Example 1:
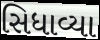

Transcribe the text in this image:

સિધાવ્યા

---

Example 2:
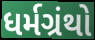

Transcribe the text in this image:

ધર્મગ્રંથો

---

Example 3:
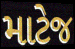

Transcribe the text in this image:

માટેજ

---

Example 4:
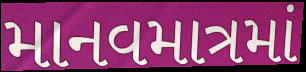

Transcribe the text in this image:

માનવમાત્રમાં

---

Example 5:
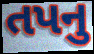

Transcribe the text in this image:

તપનુ